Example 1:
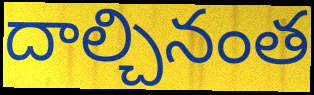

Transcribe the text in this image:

దాల్చినంత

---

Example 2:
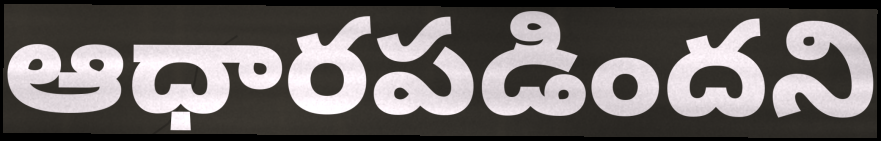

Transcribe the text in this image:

ఆధారపడిందని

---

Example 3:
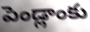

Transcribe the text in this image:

పెండ్లాంకు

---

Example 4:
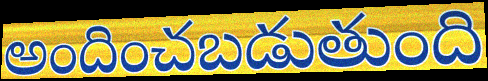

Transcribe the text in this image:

అందించబడుతుంది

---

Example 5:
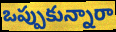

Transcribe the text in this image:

ఒప్పుకున్నారా